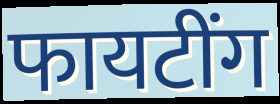
फायटींग